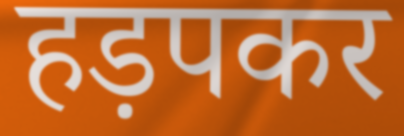
हड़पकर